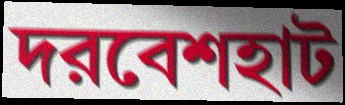
দরবেশহাট